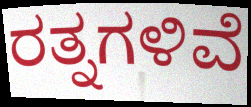
ರತ್ನಗಳಿವೆ